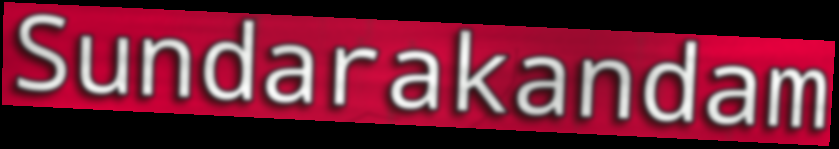
Sundarakandam